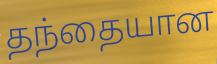
தந்தையான